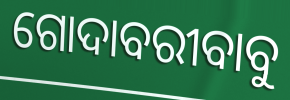
ଗୋଦାବରୀବାବୁ